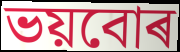
ভয়বোৰ